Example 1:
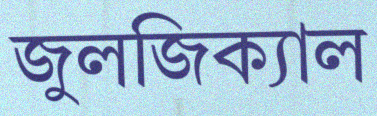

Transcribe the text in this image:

জুলজিক্যাল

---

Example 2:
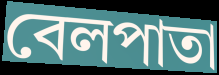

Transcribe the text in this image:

বেলপাতা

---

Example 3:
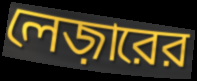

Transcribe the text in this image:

লেজ়ারের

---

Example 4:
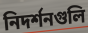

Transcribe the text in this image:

নিদর্শনগুলি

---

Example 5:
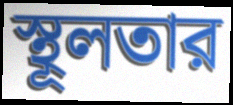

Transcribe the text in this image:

স্থূলতার